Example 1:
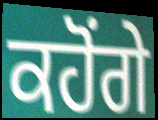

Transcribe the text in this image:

ਕਹੋਂਗੇ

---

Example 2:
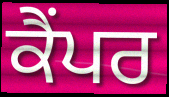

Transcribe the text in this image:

ਕੈਂਪਰ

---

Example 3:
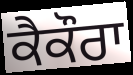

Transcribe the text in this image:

ਕੈਕੌਰਾ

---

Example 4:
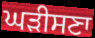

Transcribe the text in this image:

ਘੜੀਸਣਾ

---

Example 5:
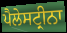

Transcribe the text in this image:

ਪੈਲੇਸਟ੍ਰੀਨਾ